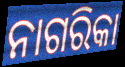
ନାଗରିକା